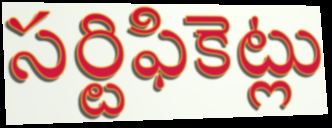
సర్టిఫికెట్లు